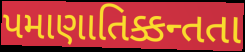
પમાણાતિક્કન્તતા